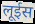
लूईस